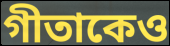
গীতাকেও